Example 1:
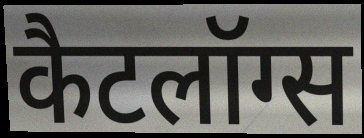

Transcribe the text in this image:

कैटलॉग्स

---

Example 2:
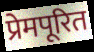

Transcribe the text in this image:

प्रेमपूरित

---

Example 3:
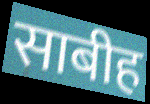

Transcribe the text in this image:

साबीह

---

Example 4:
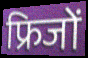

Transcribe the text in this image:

फ्रिजों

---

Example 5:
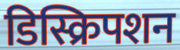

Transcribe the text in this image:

डिस्क्रिपशन